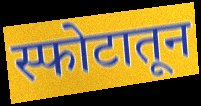
स्फोटातून